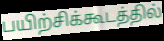
பயிற்சிக்கூடத்தில்